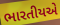
ભારતીયએ